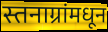
स्तनाग्रांमधून